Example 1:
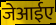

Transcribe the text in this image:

जेआईए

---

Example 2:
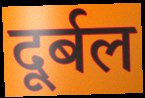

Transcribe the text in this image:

दूर्बल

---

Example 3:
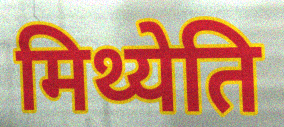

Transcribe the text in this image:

मिथ्येति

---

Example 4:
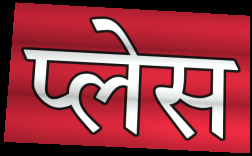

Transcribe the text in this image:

प्लेस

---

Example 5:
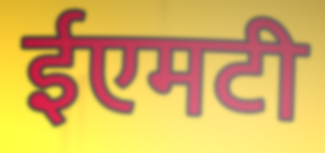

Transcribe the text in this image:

ईएमटी